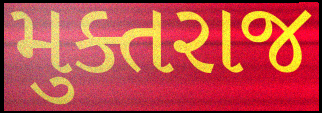
મુક્તરાજ